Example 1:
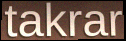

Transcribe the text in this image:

takrar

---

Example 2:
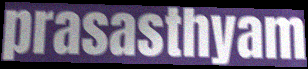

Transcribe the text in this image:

prasasthyam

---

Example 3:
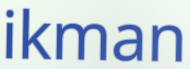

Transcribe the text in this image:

ikman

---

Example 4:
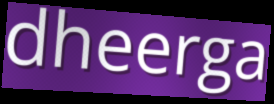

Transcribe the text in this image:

dheerga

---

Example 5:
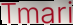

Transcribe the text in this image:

Tmari